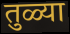
तुळ्या